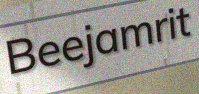
Beejamrit